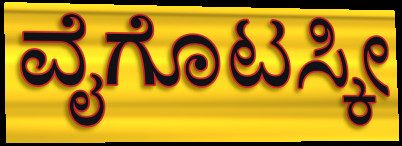
ವೈಗೊಟಸ್ಕೀ